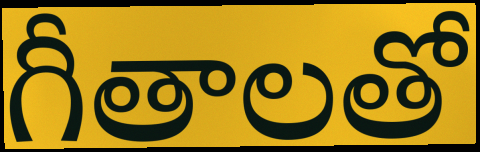
గీతాలతో